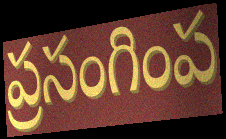
ప్రసంగింప